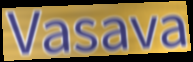
Vasava